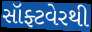
સૉફ્ટવેરથી